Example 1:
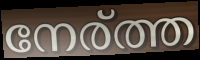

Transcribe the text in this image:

നേര്ത്ത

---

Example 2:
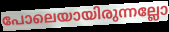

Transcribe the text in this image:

പോലെയായിരുന്നല്ലോ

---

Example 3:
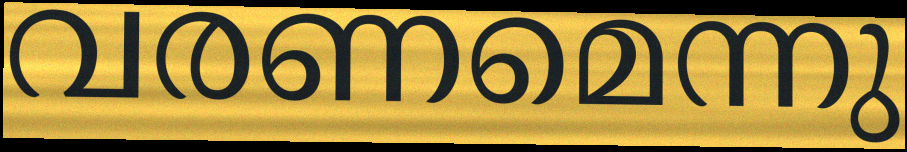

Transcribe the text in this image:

വരണമെന്നു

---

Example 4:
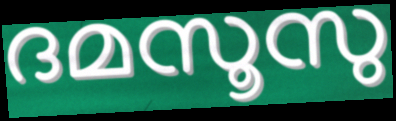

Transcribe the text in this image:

ദമസൂസു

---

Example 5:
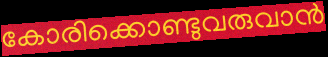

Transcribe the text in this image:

കോരിക്കൊണ്ടുവരുവാൻ